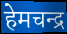
हेमचन्द्र